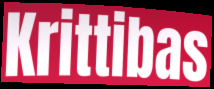
Krittibas